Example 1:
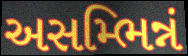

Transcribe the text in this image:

અસમ્ભિન્નં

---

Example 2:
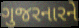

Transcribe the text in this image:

ગુજરનારને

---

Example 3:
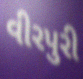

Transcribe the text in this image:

વીરપુરી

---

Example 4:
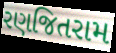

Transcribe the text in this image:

રણજિતરામ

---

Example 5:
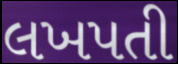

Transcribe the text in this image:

લખપતી